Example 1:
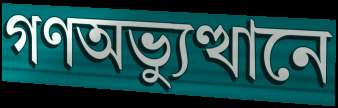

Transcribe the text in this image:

গণঅভ্যুত্থানে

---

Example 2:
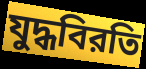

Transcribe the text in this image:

যুদ্ধবিরতি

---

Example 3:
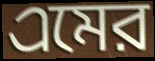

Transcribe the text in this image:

এমের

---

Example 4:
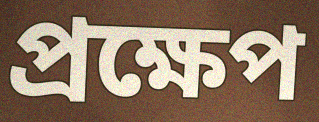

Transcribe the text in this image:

প্রক্ষেপ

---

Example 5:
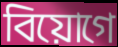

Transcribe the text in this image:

বিয়োগে